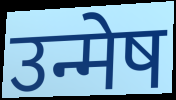
उन्मेष